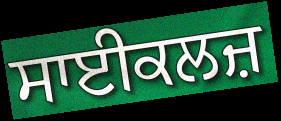
ਸਾਈਕਲਜ਼